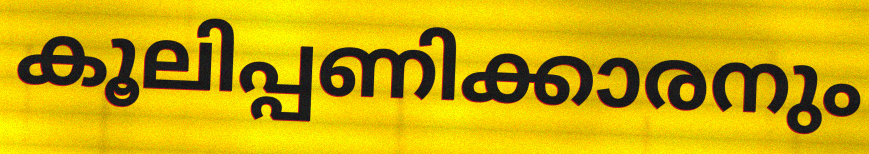
കൂലിപ്പണിക്കാരനും